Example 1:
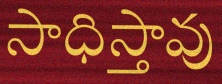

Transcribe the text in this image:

సాధిస్తావు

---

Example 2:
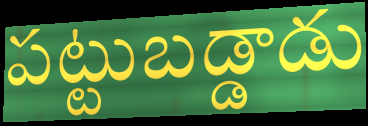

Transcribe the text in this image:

పట్టుబడ్డాడు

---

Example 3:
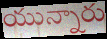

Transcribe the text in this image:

యున్నారు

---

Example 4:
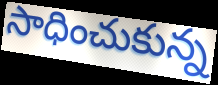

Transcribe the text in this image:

సాధించుకున్న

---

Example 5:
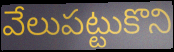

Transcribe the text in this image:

వేలుపట్టుకొని